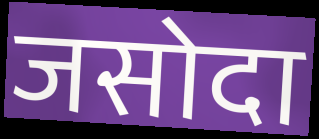
जसोदा